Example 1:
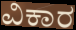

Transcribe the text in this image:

ವಿಕಾರ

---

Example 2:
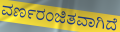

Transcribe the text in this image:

ವರ್ಣರಂಜಿತವಾಗಿದೆ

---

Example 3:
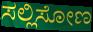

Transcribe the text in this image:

ಸಲ್ಲಿಸೋಣ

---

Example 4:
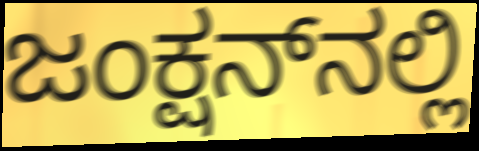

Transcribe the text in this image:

ಜಂಕ್ಷನ್‌ನಲ್ಲಿ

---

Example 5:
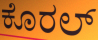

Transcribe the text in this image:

ಕೊರಲ್